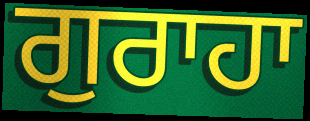
ਗੁਰਾਹਾ